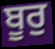
ਬੂਰੁ